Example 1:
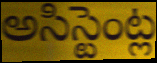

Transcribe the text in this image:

అసిస్టెంట్ల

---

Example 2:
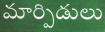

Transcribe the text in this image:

మార్పిడులు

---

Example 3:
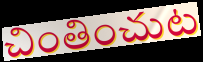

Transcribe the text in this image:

చింతించుట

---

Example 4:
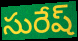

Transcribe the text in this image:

సురేష్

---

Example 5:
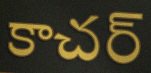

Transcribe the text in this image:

కాచర్